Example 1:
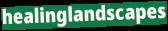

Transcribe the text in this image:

healinglandscapes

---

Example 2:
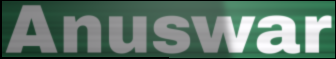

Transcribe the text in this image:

Anuswar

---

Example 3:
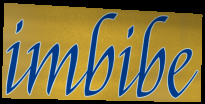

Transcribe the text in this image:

imbibe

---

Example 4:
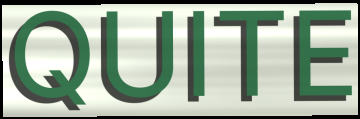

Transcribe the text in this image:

QUITE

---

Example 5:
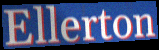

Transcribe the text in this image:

Ellerton